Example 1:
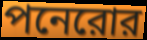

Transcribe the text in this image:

পনেরোর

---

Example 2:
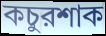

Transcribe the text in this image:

কচুরশাক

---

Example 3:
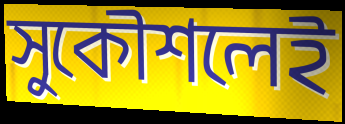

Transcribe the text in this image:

সুকৌশলেই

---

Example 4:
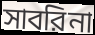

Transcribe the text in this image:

সাবরিনা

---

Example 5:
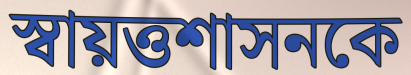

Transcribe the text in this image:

স্বায়ত্তশাসনকে